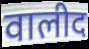
वालीद